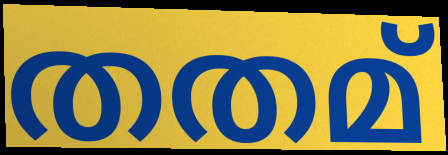
തതമ്